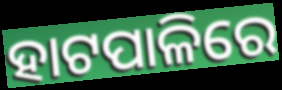
ହାଟପାଳିରେ